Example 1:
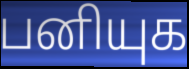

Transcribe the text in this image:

பனியுக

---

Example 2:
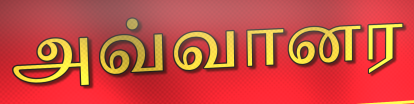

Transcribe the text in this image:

அவ்வானர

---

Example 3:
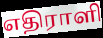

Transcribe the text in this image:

எதிராளி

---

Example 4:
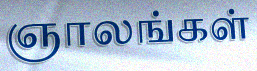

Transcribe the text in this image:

ஞாலங்கள்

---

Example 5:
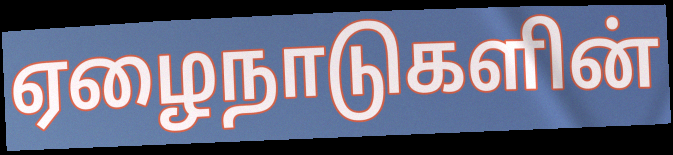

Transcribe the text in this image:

ஏழைநாடுகளின்